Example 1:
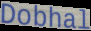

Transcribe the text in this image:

Dobhal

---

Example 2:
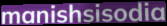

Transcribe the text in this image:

manishsisodia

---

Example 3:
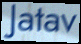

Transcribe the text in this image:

Jatav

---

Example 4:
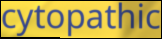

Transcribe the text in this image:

cytopathic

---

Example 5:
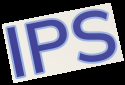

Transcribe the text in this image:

IPS